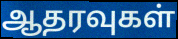
ஆதரவுகள்